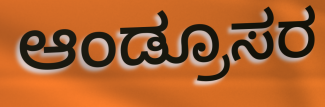
ಆಂಡ್ರೂಸರ